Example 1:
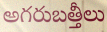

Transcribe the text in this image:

అగరుబత్తీలు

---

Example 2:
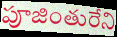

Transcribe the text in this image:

పూజింతురేని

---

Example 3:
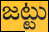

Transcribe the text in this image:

జట్టు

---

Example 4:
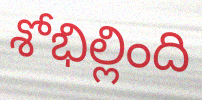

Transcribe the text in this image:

శోభిల్లింది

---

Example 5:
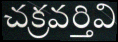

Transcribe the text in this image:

చక్రవర్తివి